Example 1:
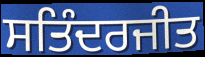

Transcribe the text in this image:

ਸਤਿੰਦਰਜੀਤ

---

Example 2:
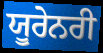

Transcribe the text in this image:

ਯੂਰੇਨਰੀ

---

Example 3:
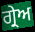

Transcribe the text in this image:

ਗ੍ਰੇਅ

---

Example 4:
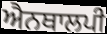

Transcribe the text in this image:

ਐਨਥਾਲਪੀ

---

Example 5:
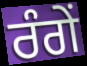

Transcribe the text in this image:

ਰੰਗੇਂ